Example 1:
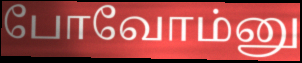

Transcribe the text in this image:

போவோம்னு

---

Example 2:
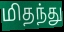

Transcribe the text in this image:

மிதந்து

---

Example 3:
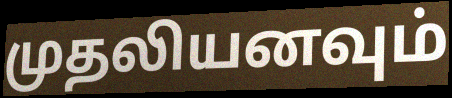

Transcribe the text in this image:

முதலியனவும்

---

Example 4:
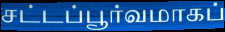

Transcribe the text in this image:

சட்டப்பூர்வமாகப்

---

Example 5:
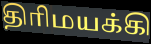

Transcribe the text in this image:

திரிமயக்கி